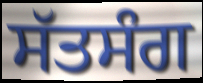
ਸੱਤਸੰਗ